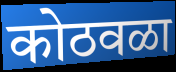
कोठवळा